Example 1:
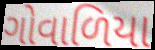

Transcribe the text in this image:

ગોવાળિયા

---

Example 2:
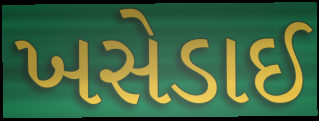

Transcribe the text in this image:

ખસેડાઈ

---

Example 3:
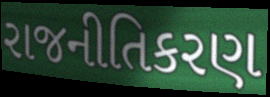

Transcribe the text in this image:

રાજનીતિકરણ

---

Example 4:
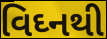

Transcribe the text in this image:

વિઘ્નથી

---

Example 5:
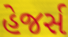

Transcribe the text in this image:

હેજર્સ